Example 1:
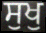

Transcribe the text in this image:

ਸੁਖੁ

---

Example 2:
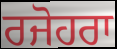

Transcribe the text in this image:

ਰਜੋਹਰਾ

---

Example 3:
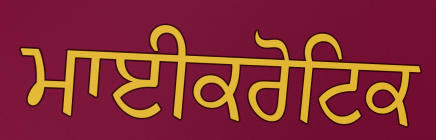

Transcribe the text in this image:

ਮਾਈਕਰੋਟਿਕ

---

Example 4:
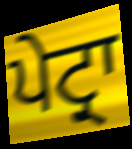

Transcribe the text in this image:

ਪੇਟ੍ਰਾ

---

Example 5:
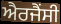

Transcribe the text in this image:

ਐਰਜੈਂਸੀ